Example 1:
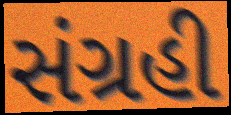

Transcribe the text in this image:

સંગ્રહી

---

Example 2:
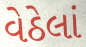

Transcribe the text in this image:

વેઠેલાં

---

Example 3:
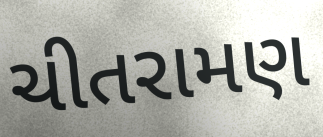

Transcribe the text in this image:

ચીતરામણ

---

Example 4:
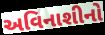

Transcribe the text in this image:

અવિનાશીનો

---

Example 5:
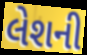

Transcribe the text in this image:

લેશની